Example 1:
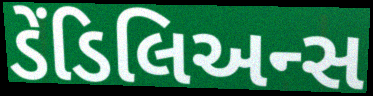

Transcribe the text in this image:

ડેંડિલિઅન્સ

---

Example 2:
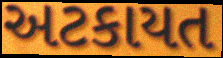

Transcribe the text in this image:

અટકાયત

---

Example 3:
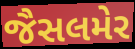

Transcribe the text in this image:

જૈસલમેર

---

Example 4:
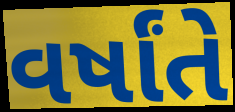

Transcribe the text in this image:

વર્ષાંતે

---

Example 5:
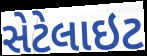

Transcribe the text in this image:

સેટેલાઇટ